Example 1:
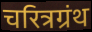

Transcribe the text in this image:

चरित्रग्रंथ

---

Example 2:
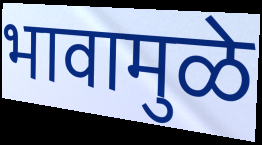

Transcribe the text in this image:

भावामुळे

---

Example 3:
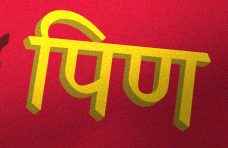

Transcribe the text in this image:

पिण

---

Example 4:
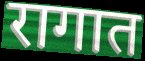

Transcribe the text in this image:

रागात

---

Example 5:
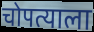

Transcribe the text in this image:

चोपत्याला